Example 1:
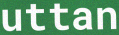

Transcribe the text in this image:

uttan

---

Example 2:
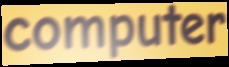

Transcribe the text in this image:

computer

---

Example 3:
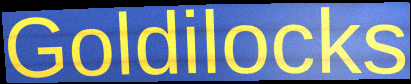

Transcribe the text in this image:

Goldilocks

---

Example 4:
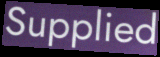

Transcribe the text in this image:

Supplied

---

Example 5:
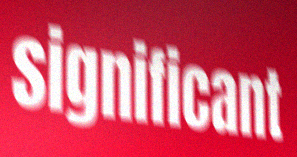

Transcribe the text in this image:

significant